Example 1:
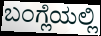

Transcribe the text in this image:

ಬಂಗ್ಲೆಯಲ್ಲಿ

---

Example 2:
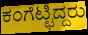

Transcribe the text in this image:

ಕಂಗೆಟ್ಟಿದ್ದರು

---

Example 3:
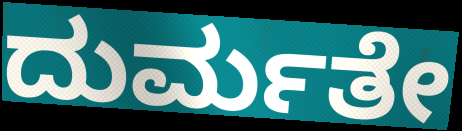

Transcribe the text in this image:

ದುರ್ಮತೇ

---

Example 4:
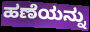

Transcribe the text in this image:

ಹಣೆಯನ್ನು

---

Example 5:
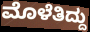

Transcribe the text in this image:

ಮೊಳೆತಿದ್ದು